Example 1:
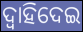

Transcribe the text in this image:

ଦ୍ବାହିଦେଇ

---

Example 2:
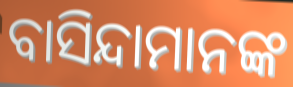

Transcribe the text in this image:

ବାସିନ୍ଦାମାନଙ୍କ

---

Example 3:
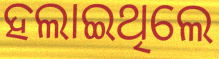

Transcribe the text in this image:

ହଲାଇଥିଲେ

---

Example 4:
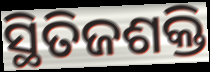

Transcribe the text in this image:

ସ୍ଥିତିଜଶକ୍ତି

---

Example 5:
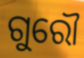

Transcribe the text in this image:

ଗୁରୌ